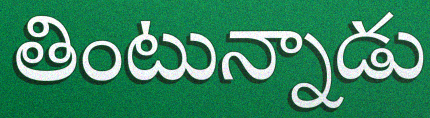
తింటున్నాడు